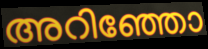
അറിഞ്ഞോ